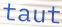
taut